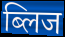
ब्लिज